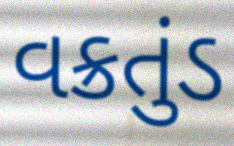
વક્રતુંડ